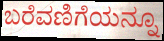
ಬರೆವಣಿಗೆಯನ್ನೂ